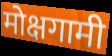
मोक्षगामी